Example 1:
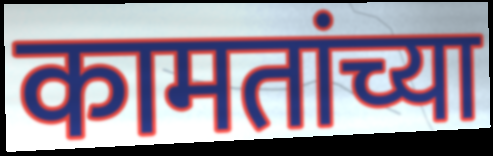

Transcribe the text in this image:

कामतांच्या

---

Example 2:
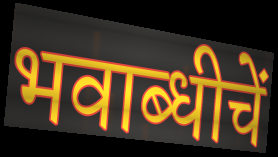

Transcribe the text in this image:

भवाब्धीचें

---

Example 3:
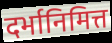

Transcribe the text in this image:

दर्भानिमित्त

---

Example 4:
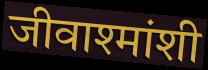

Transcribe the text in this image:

जीवाश्मांशी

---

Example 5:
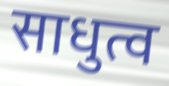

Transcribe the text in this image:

साधुत्व